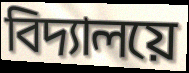
বিদ্যালয়ে